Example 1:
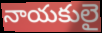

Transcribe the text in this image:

నాయకులై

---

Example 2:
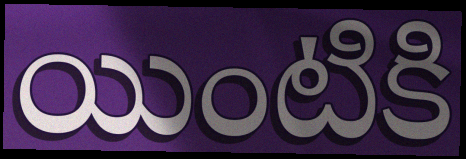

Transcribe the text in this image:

యింటికి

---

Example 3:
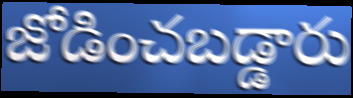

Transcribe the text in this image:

జోడించబడ్డారు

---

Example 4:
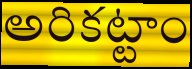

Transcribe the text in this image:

అరికట్టాం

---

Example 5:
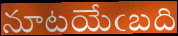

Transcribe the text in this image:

నూటయేఁబది